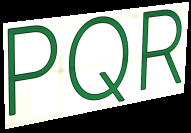
PQR